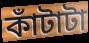
কাঁটাটা